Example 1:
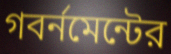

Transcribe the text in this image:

গবর্নমেন্টের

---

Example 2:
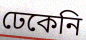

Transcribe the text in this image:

ঢেকেনি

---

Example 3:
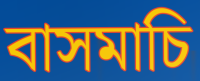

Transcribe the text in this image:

বাসমাচি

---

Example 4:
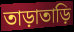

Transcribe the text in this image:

তাড়াতাড়ি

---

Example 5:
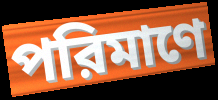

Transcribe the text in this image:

পরিমাণে